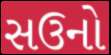
સઉનો